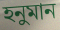
হনুমান